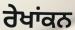
ਰੇਖਾਂਕਨ